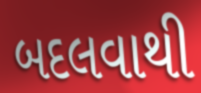
બદલવાથી